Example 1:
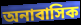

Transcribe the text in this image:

অনাবাসিক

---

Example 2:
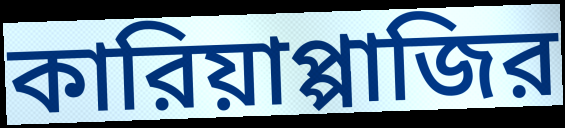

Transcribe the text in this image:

কারিয়াপ্পাজির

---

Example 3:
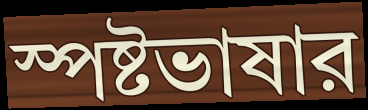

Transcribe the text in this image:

স্পষ্টভাষার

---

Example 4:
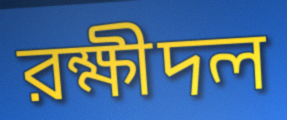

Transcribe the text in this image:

রক্ষীদল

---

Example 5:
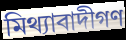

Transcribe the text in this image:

মিথ্যাবাদীগণ